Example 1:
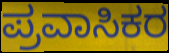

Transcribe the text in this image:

ಪ್ರವಾಸಿಕರ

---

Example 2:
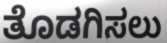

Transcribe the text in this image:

ತೊಡಗಿಸಲು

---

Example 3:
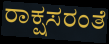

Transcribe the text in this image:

ರಾಕ್ಷಸರಂತೆ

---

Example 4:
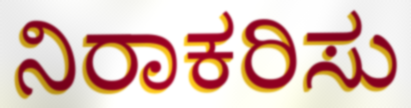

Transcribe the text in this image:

ನಿರಾಕರಿಸು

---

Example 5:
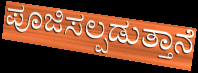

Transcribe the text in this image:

ಪೂಜಿಸಲ್ಪಡುತ್ತಾನೆ